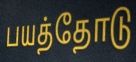
பயத்தோடு